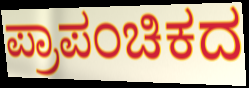
ಪ್ರಾಪಂಚಿಕದ